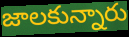
జాలకున్నారు